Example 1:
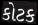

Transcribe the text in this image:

કોટક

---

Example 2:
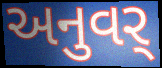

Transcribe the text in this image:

અનુવર્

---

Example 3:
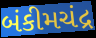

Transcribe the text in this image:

બંકીમચંદ્ર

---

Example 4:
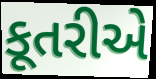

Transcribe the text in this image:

કૂતરીએ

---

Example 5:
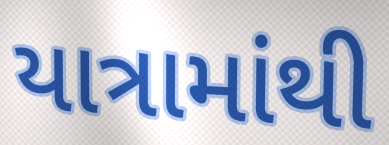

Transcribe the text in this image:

યાત્રામાંથી